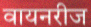
वायनरीज